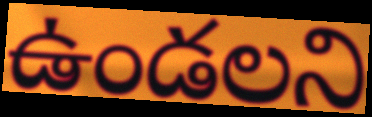
ఉండలని